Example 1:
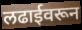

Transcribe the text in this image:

लढाईवरून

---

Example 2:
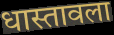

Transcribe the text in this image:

धास्तावला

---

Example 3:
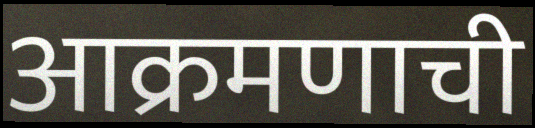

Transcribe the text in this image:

आक्रमणाची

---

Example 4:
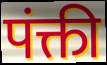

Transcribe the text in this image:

पंक्ती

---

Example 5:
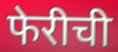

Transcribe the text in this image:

फेरीची